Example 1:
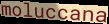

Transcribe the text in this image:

moluccana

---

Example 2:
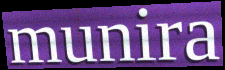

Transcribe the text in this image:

munira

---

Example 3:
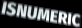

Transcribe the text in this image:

ISNUMERIC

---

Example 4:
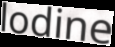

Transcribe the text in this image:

lodine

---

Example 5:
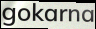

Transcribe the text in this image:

gokarna